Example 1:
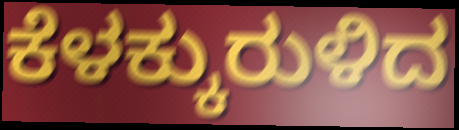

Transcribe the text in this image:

ಕೆಳಕ್ಕುರುಳಿದ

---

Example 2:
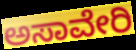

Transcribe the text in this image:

ಅಸಾವೇರಿ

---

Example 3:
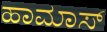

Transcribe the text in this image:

ಹಾಮಾಸ್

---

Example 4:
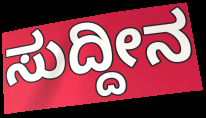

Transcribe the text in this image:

ಸುದ್ದೀನ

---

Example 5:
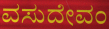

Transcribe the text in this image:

ವಸುದೇವಂ